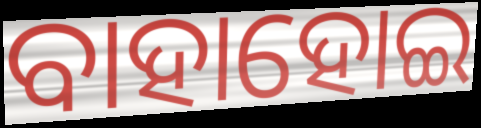
ବାହାହୋଇ